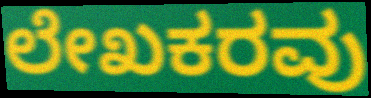
ಲೇಖಕರವು